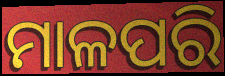
ମାଳପରି